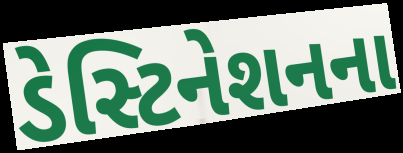
ડેસ્ટિનેશનના